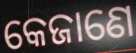
କେଜାଣେ